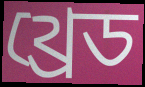
থ্রেড